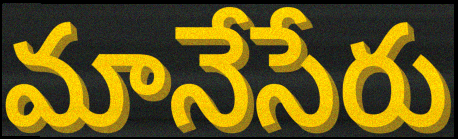
మానేసేరు